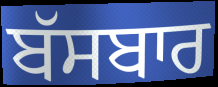
ਬੱਸਬਾਰ